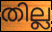
തില്ല